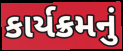
કાર્યક્રમનું